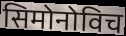
सिमोनोविच